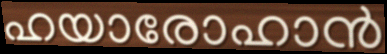
ഹയാരോഹാൻ